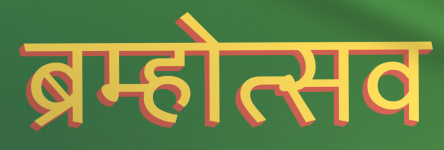
ब्रम्होत्सव